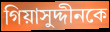
গিয়াসুদ্দীনকে